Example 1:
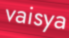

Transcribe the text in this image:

vaisya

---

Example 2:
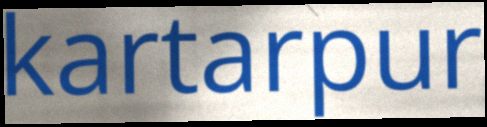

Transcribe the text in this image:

kartarpur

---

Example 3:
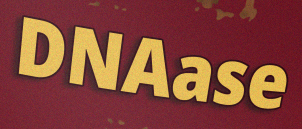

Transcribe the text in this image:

DNAase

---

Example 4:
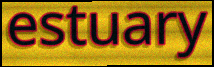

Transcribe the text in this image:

estuary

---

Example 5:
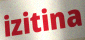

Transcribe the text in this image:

izitina